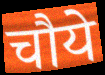
चौये